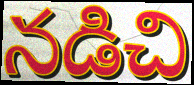
నడిచి